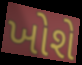
ખોશે